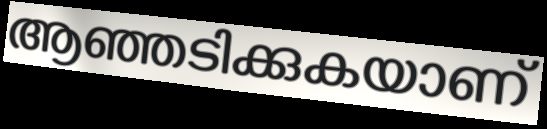
ആഞ്ഞടിക്കുകയാണ്